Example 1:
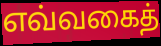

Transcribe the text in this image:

எவ்வகைத்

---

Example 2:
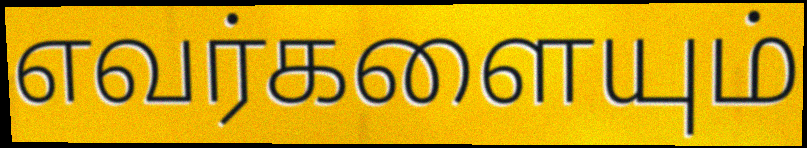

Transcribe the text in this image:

எவர்களையும்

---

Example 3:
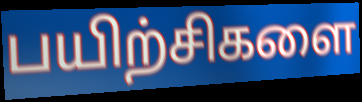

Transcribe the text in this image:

பயிற்சிகளை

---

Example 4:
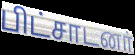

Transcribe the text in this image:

பிட்சாடனர்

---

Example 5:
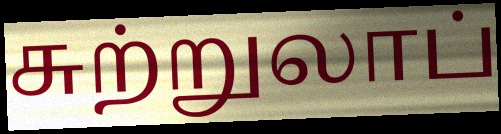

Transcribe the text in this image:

சுற்றுலாப்